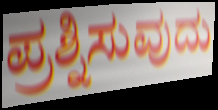
ಪ್ರಶ್ನಿಸುವುದು